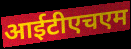
आईटीएचएम